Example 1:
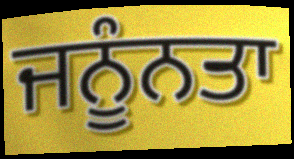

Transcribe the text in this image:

ਜਨੂੰਨਤਾ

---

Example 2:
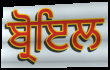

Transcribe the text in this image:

ਬ੍ਰੋਇਲ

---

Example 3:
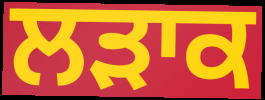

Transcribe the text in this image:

ਲੜਾਕ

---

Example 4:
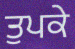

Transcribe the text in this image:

ਤੁਪਕੇ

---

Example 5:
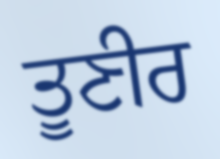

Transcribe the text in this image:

ਤੂਣੀਰ